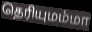
தெரியுமம்மா